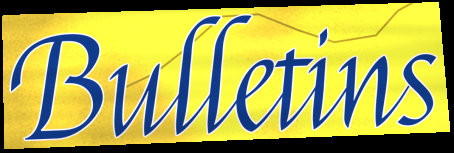
Bulletins